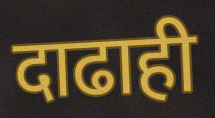
दाढाही